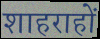
शाहराहों